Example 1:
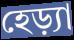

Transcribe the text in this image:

হেড়্যা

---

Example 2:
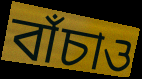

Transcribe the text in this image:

বাঁচাও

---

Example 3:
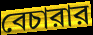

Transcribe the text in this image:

বেচারার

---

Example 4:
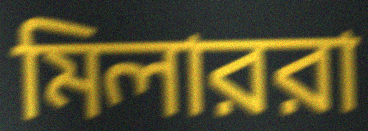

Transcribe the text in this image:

মিলাররা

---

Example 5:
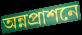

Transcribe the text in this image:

অন্নপ্রাশনে